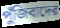
পুঁজিবাদের